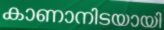
കാണാനിടയായി